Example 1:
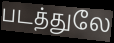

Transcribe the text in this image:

படத்துலே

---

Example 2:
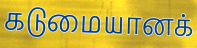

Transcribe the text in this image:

கடுமையானக்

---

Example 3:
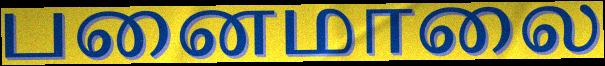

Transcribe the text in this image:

பனைமாலை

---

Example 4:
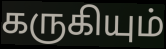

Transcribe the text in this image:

கருகியும்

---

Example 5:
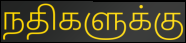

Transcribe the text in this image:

நதிகளுக்கு